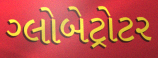
ગ્લોબેટ્રોટર